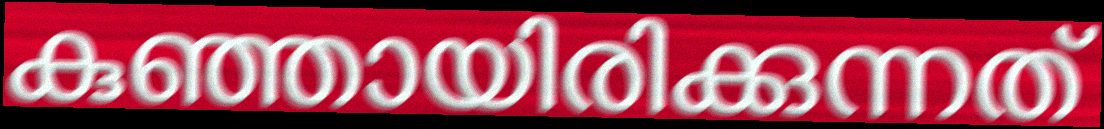
കുഞ്ഞായിരിക്കുന്നത്